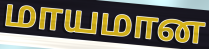
மாயமான